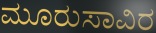
ಮೂರುಸಾವಿರ